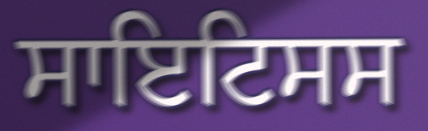
ਸਾਇਟਿਸਸ